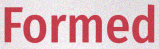
Formed